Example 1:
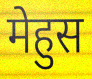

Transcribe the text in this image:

मेहुस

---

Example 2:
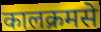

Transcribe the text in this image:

कालक्रमसे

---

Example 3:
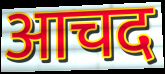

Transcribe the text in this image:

आचद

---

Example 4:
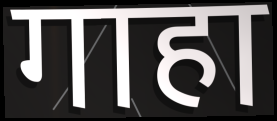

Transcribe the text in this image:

गाहा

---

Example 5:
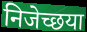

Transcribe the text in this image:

निजेच्छया